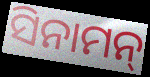
ସିନାମନ୍